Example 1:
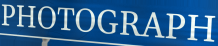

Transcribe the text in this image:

PHOTOGRAPH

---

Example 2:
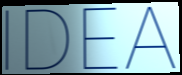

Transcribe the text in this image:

IDEA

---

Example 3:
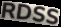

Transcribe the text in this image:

RDSS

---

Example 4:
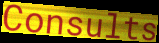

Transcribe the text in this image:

Consults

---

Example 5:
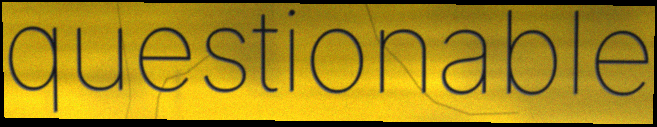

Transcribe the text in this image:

questionable